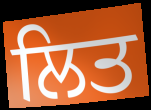
ਲਿਤ